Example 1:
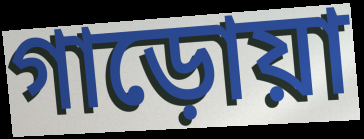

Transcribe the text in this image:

গাড়োয়া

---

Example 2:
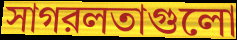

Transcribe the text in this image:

সাগরলতাগুলো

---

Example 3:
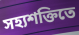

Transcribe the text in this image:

সহ্যশক্তিতে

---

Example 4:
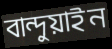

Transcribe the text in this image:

বান্দুয়াইন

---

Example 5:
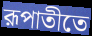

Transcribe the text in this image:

রূপাতীতে